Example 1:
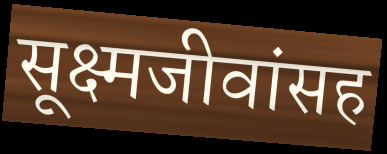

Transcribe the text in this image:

सूक्ष्मजीवांसह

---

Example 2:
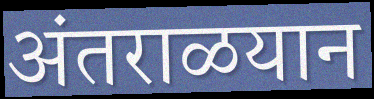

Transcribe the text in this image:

अंतराळयान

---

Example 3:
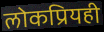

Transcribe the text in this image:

लोकप्रियही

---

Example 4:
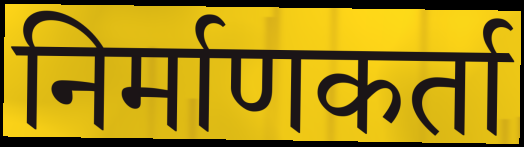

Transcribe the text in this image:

निर्माणकर्ता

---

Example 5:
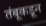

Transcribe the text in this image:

तंबूकडून